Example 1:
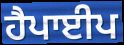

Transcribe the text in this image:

ਹੈਪਾਈਪ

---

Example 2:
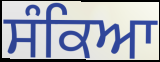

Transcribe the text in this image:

ਸੰਕਿਆ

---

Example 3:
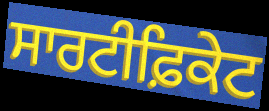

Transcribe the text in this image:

ਸਾਰਟੀਫ਼ਿਕੇਟ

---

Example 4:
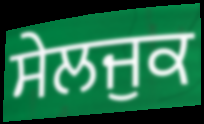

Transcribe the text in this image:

ਸੇਲਜੁਕ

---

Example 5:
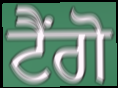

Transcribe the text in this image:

ਟੈਂਗੋ